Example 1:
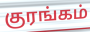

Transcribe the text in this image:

குரங்கம்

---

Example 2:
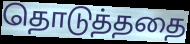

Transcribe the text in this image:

தொடுத்ததை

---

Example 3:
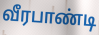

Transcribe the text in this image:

வீரபாண்டி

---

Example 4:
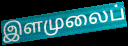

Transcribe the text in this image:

இளமுலைப்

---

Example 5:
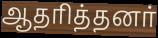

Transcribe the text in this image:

ஆதரித்தனர்